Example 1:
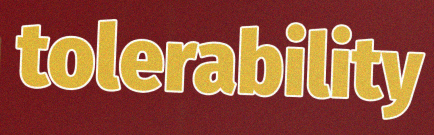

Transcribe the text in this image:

tolerability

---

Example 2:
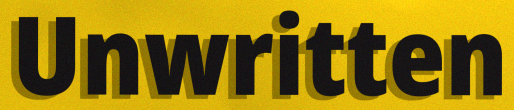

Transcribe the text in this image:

Unwritten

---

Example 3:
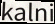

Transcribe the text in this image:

kalni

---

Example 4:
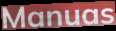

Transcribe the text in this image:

Manuas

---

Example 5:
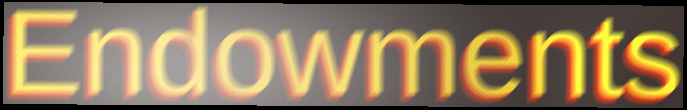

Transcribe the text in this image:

Endowments